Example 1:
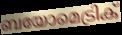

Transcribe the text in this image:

ബയോമെട്രിക്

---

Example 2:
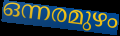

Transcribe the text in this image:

ഒന്നരമുഴം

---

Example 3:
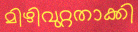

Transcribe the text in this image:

മിഴിവുറ്റതാക്കി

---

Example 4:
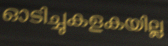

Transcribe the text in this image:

ഓടിച്ചുകളകയില്ല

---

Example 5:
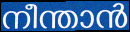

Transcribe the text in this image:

നീന്താൻ